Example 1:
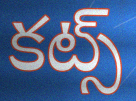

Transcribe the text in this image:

కట్స్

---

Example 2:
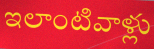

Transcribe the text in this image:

ఇలాంటివాళ్లు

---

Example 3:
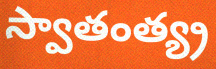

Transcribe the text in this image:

స్వాతంత్య్ర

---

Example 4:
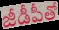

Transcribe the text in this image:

జీడీపీతో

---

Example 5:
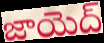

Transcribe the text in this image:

జాయెద్